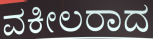
ವಕೀಲರಾದ